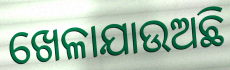
ଖେଳାଯାଉଅଛି